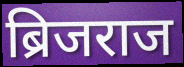
ब्रिजराज